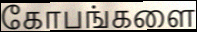
கோபங்களை